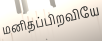
மனிதப்பிறவியே